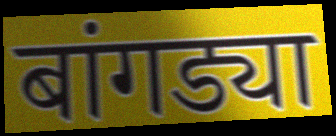
बांगड्या